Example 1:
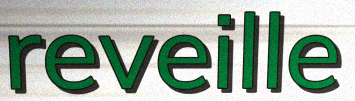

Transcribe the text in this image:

reveille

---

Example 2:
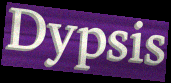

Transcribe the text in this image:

Dypsis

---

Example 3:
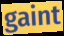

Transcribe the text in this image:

gaint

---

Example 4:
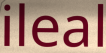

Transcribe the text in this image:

ileal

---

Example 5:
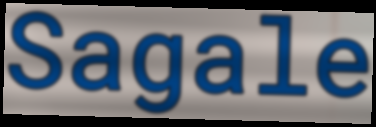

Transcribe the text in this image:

Sagale